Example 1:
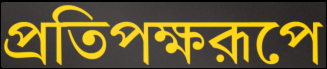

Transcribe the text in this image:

প্রতিপক্ষরূপে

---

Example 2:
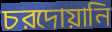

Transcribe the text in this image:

চরদোয়ানি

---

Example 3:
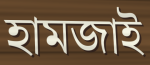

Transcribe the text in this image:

হামজাই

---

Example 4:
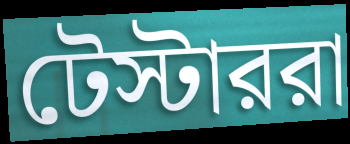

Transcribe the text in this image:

টেস্টাররা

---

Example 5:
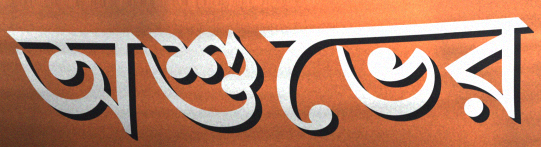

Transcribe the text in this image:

অশুভের